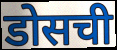
डोसची